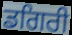
ਡਗਿਰੀ